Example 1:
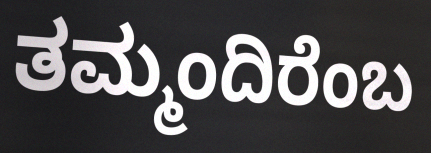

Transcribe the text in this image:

ತಮ್ಮಂದಿರೆಂಬ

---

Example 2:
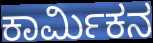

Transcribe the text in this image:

ಕಾರ್ಮಿಕನ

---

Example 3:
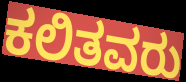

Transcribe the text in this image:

ಕಲಿತವರು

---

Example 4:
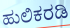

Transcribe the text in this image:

ಹುಲಿಕರಡಿ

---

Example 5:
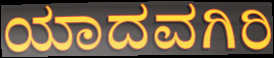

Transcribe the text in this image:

ಯಾದವಗಿರಿ